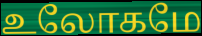
உலோகமே